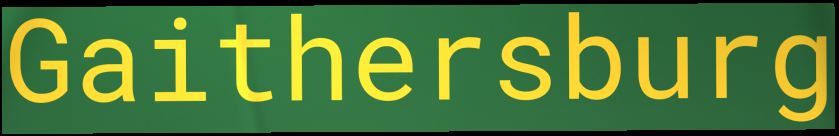
Gaithersburg